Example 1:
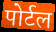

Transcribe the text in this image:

पोर्टल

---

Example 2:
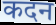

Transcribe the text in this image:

कदन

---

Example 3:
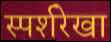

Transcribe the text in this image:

स्पर्शरेखा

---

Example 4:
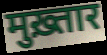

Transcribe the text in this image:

मुख़्तार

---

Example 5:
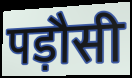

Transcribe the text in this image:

पड़ौसी